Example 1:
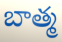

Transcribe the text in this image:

బాత్మ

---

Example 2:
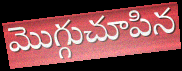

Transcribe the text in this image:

మొగ్గుచూపిన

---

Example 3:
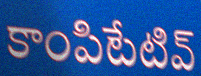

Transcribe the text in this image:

కాంపిటేటివ్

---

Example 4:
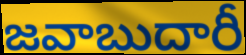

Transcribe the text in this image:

జవాబుదారీ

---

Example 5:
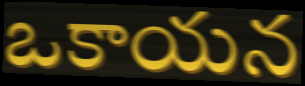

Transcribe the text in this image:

ఒకాయన